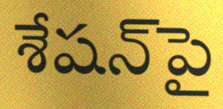
శేషన్‌పై